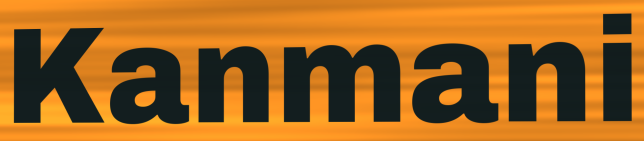
Kanmani